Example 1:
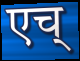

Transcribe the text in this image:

एच्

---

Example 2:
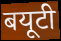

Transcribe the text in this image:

बयूटी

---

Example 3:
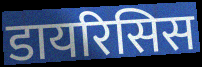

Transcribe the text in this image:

डायरिसिस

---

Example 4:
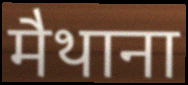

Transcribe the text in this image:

मैथाना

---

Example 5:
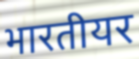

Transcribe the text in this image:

भारतीयर